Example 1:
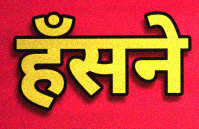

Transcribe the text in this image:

हँसने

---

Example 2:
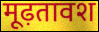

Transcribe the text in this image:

मूढ़तावश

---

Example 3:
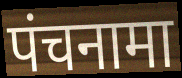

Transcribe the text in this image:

पंचनामा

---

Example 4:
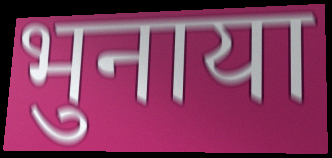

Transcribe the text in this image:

भुनाया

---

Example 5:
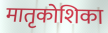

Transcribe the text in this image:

मातृकोशिका